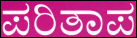
ಪರಿತಾಪ